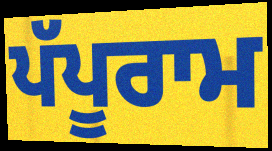
ਪੱਪੂਰਾਮ